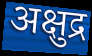
अक्षुद्र